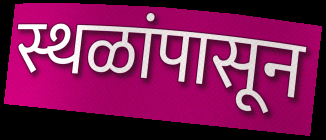
स्थळांपासून